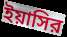
ইয়াসির